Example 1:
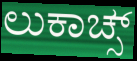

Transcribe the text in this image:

ಲುಕಾಚ್ಸ್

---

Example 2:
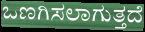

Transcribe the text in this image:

ಒಣಗಿಸಲಾಗುತ್ತದೆ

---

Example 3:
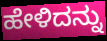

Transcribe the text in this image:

ಹೇಳಿದನ್ನು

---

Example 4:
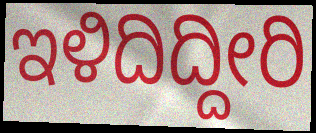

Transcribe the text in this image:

ಇಳಿದಿದ್ದೀರಿ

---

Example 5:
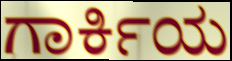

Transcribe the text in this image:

ಗಾರ್ಕಿಯ